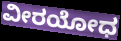
ವೀರಯೋಧ